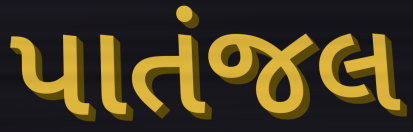
પાતંજલ